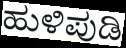
ಹುಳಿಪುಡಿ